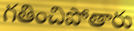
గతించిపోతారు